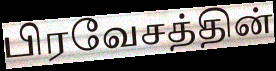
பிரவேசத்தின்